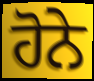
ਹੋਨੇ